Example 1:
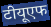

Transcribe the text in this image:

टीयूएफ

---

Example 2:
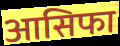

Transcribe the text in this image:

आसिफा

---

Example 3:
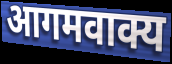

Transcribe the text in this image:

आगमवाक्य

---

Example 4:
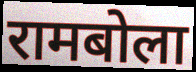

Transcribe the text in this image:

रामबोला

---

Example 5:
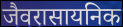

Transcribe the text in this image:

जैवरासायनिक